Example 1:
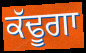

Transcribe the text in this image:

ਕੱਢੂਗਾ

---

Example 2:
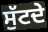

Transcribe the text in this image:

ਸੁੱਟਦੇ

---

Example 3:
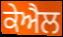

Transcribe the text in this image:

ਕੇਐਲ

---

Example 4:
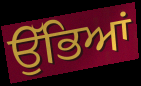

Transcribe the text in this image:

ਉੱਭਿਆਂ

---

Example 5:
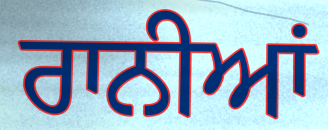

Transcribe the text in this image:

ਰਾਨੀਆਂ